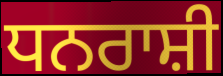
ਧਨਰਾਸ਼ੀ